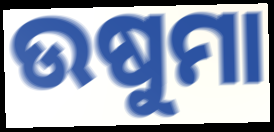
ଉଷୁମା